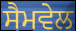
ਸੈਮਵੇਲ